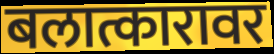
बलात्कारावर